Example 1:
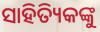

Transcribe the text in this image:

ସାହିତ୍ୟିକଙ୍କୁ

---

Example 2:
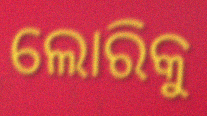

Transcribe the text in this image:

ଲୋରିକୁ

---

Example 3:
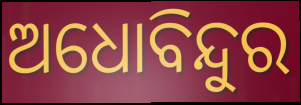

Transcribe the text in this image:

ଅଧୋବିନ୍ଦୁର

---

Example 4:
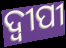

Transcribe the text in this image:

ଦ୍ଵୀପୀ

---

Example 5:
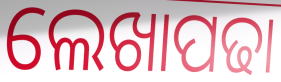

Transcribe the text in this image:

ଲେଖାପଢା